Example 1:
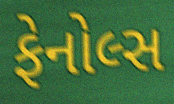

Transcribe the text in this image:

ફેનોલ્સ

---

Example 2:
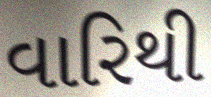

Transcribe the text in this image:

વારિથી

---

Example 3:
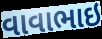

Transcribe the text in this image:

વાવાભાઇ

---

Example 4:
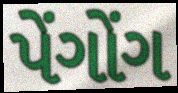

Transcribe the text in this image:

પેંગોંગ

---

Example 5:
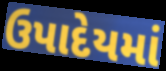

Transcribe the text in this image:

ઉપાદેયમાં